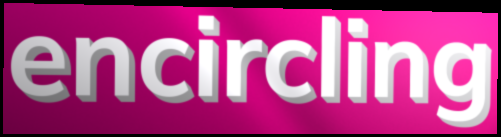
encircling